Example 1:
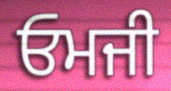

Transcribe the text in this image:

ਓਮਜੀ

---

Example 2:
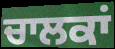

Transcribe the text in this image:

ਚਾਲਕਾਂ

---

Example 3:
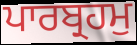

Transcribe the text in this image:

ਪਾਰਬ੍ਰਹਮੁ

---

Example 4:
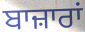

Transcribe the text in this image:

ਬਾਜ਼ਾਰਾਂ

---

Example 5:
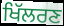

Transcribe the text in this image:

ਖਿੱਲਰਣ